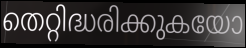
തെറ്റിദ്ധരിക്കുകയോ